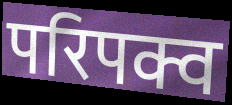
परिपक्व